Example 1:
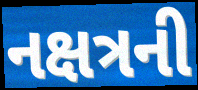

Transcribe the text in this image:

નક્ષત્રની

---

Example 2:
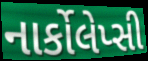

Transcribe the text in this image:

નાર્કોલેપ્સી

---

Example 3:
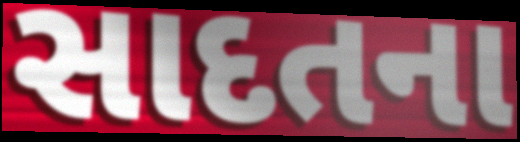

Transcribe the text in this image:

સાદતના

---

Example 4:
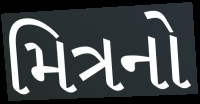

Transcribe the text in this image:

મિત્રનો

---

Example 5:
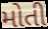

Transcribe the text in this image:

મોતી